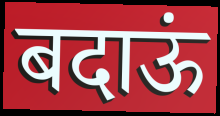
बदाऊं